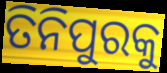
ତିନିପୁରକୁ